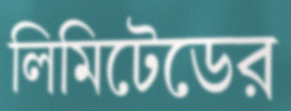
লিমিটেডের